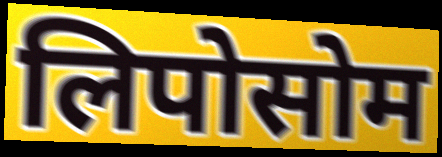
लिपोसोम